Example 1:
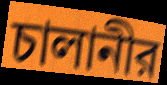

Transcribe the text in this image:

চালানীর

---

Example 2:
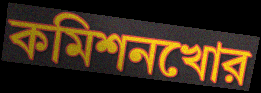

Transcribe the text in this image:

কমিশনখোর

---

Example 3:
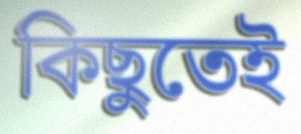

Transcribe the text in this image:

কিছুতেই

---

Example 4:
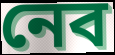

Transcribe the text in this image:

নেব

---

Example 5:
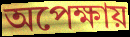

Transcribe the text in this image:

অপেক্ষায়